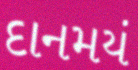
દાનમયં